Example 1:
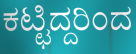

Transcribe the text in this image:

ಕಟ್ಟಿದ್ದರಿಂದ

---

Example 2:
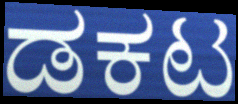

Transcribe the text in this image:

ಡಕಟ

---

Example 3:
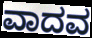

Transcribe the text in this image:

ವಾದವ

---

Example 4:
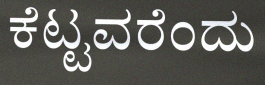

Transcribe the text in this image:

ಕೆಟ್ಟವರೆಂದು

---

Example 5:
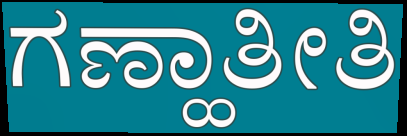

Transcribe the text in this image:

ಗಣ್ಹಾತೀತಿ